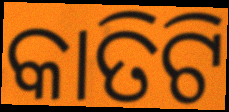
କାତିଟି